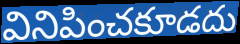
వినిపించకూడదు